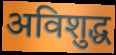
अविशुद्ध